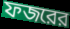
ফজরের